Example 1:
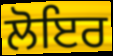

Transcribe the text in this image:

ਲੋਇਰ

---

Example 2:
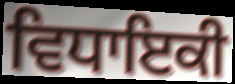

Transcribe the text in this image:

ਵਿਧਾਇਕੀ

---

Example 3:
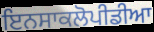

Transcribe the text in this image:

ਇਨਸਾਕਲੋਪੀਡੀਆ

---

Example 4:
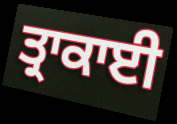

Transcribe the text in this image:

ਤ੍ਰਾਕਾਈ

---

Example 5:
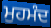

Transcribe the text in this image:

ਮੁਹਮੰਦ